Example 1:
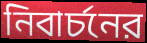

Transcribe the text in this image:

নিবার্চনের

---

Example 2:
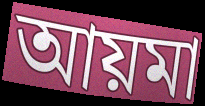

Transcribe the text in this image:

আয়মা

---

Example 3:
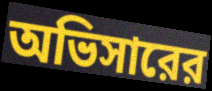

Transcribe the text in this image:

অভিসারের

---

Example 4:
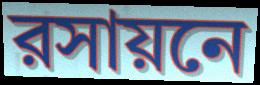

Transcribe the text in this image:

রসায়নে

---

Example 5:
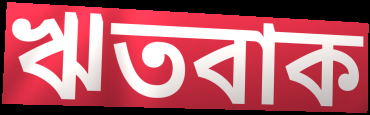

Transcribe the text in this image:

ঋতবাক